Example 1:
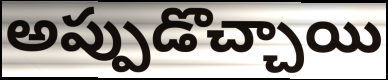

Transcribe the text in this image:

అప్పుడొచ్చాయి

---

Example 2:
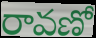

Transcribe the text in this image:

రావణో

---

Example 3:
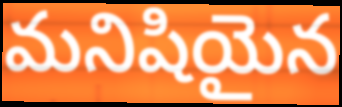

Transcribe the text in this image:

మనిషియైన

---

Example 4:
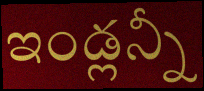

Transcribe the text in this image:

ఇండ్లన్నీ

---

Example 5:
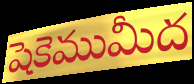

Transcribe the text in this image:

షెకెముమీద